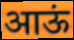
आऊं